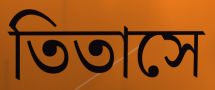
তিতাসে